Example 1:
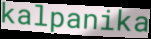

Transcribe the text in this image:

kalpanika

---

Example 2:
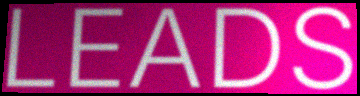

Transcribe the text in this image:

LEADS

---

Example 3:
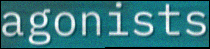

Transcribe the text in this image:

agonists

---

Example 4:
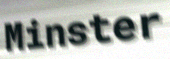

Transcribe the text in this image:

Minster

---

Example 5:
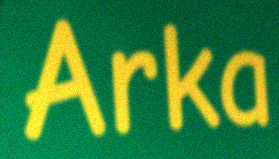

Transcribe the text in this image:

Arka